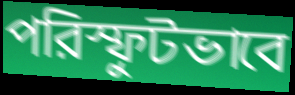
পরিস্ফুটভাবে